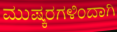
ಮುಷ್ಕರಗಳಿಂದಾಗಿ